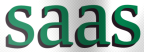
saas